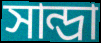
সান্দ্রা